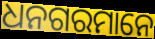
ଧନଗରମାନେ